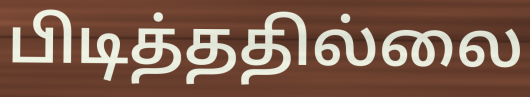
பிடித்ததில்லை